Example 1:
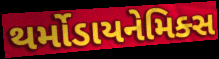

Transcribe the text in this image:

થર્મોડાયનેમિક્સ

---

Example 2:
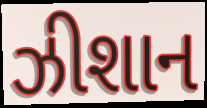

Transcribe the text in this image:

ઝીશાન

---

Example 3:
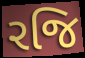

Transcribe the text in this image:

રજિ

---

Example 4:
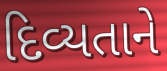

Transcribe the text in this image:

દિવ્યતાને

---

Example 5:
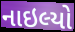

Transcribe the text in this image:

નાઇલ્યો